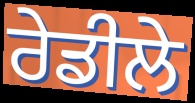
ਰੇਡੀਲੇ